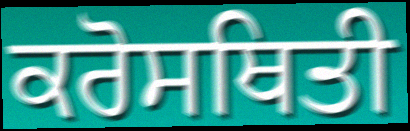
ਕਰੋਸਥਿਤੀ